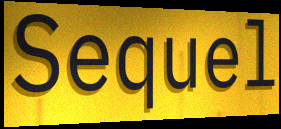
Sequel